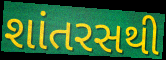
શાંતરસથી